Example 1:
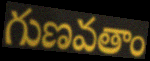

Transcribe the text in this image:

గుణవతాం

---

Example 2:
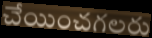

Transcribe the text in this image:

చేయించగలరు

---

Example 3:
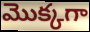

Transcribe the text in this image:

మొక్కగా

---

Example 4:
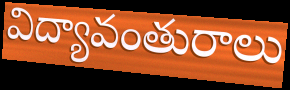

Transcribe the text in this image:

విద్యావంతురాలు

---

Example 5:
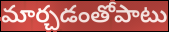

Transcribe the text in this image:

మార్చడంతోపాటు